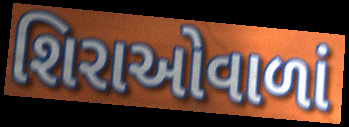
શિરાઓવાળાં